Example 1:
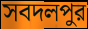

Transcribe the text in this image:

সবদলপুর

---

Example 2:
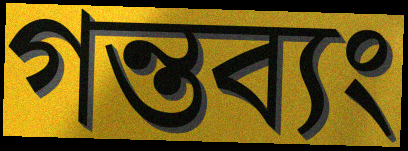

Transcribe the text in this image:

গন্তব্যং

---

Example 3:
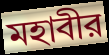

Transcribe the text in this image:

মহাবীর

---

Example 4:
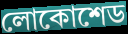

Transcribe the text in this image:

লোকোশেড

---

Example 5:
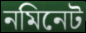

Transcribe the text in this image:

নমিনেট